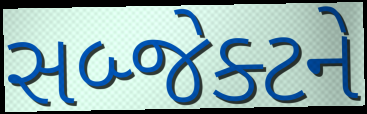
સબ્જેક્ટને